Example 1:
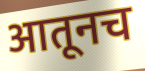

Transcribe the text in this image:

आतूनच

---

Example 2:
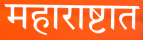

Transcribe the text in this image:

महाराष्टात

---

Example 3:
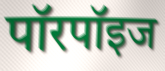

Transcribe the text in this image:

पॉरपॉइज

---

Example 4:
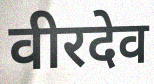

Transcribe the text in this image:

वीरदेव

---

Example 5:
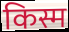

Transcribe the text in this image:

किस्म